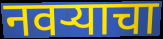
नवऱ्याचा